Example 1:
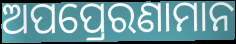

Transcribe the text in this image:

ଅପପ୍ରେରଣାମାନ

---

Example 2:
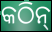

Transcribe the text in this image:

କଠିନ୍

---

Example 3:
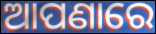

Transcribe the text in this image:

ଆପଣାରେ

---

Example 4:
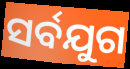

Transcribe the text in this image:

ସର୍ବଯୁଗ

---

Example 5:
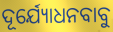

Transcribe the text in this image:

ଦୂର୍ଯ୍ୟୋଧନବାବୁ